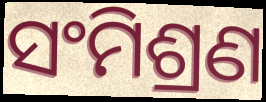
ସଂମିଶ୍ରଣ